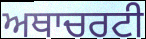
ਅਥਾਚਰਟੀ